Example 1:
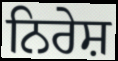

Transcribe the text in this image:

ਨਿਰੇਸ਼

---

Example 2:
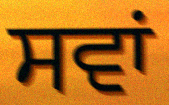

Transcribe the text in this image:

ਸਵਾਂ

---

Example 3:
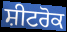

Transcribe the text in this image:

ਸ਼ੀਟਰੋਕ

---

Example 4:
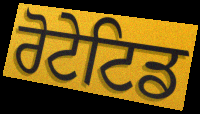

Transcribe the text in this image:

ਰੋਟੇਟਿਡ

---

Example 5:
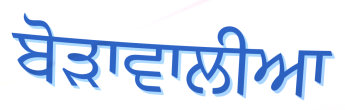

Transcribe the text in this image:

ਬੋੜਾਵਾਲੀਆ